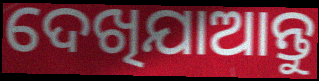
ଦେଖିଯାଆନ୍ତୁ